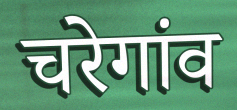
चरेगांव